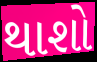
થાશો